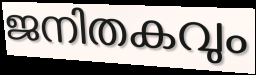
ജനിതകവും